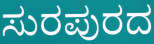
ಸುರಪುರದ